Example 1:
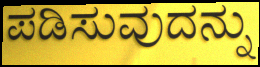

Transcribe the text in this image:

ಪಡಿಸುವುದನ್ನು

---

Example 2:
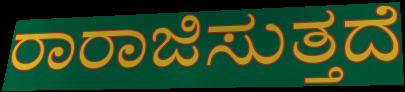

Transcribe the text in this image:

ರಾರಾಜಿಸುತ್ತದೆ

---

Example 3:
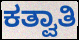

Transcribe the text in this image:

ಕತ್ವಾತಿ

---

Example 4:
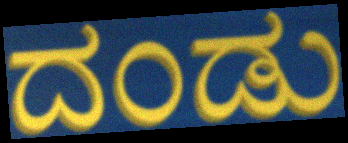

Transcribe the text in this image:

ದಂಡು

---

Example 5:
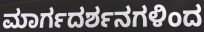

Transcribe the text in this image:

ಮಾರ್ಗದರ್ಶನಗಳಿಂದ